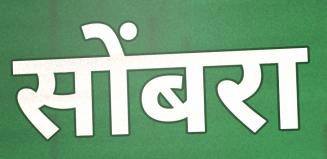
सोंबरा